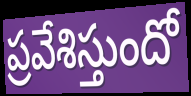
ప్రవేశిస్తుందో